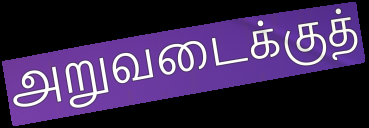
அறுவடைக்குத்